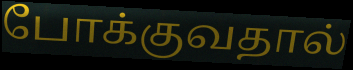
போக்குவதால்